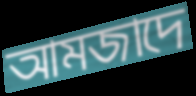
আমজাদে